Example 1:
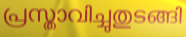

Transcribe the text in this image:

പ്രസ്താവിച്ചുതുടങ്ങി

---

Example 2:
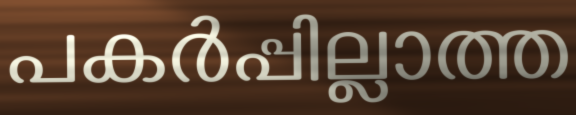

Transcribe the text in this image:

പകർപ്പില്ലാത്ത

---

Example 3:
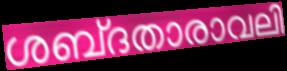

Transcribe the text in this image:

ശബ്‌ദതാരാവലി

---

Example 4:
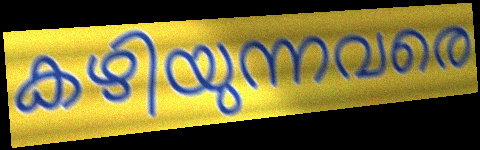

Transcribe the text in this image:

കഴിയുന്നവരെ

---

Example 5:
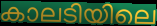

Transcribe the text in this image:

കാലടിയിലെ